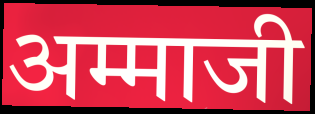
अम्माजी